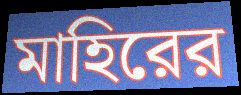
মাহিরের